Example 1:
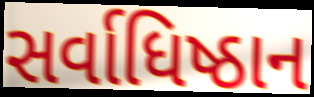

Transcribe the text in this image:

સર્વાધિષ્ઠાન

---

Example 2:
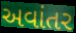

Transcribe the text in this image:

અવાંતર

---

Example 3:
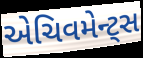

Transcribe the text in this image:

એચિવમેન્ટ્સ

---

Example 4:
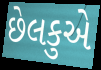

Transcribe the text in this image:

છેલકુએ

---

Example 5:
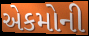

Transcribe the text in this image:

એકમોની